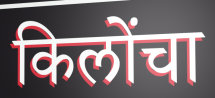
किलोंचा